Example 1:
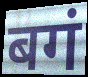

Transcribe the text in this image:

बगं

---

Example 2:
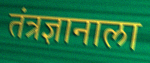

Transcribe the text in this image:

तंत्रज्ञानाला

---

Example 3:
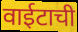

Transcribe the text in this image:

वाईटाची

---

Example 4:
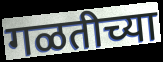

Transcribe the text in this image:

गळतीच्या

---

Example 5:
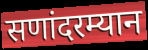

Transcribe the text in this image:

सणांदरम्यान